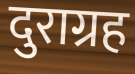
दुराग्रह